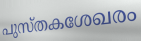
പുസ്തകശേഖരം